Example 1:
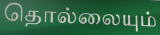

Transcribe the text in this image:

தொல்லையும்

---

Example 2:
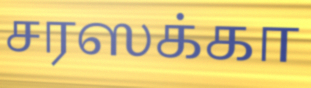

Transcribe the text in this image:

சரஸக்கா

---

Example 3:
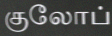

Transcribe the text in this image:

குலோப்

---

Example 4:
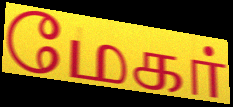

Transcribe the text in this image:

மேகர்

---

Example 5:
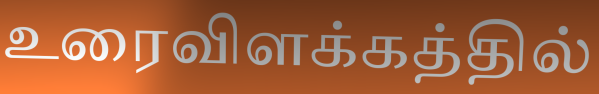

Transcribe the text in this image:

உரைவிளக்கத்தில்